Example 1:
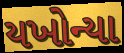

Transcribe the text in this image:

યખોન્યા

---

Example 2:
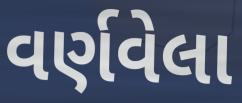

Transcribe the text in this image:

વર્ણવેલા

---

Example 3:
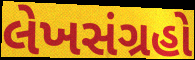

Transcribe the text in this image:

લેખસંગ્રહો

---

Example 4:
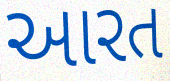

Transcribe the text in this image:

આરત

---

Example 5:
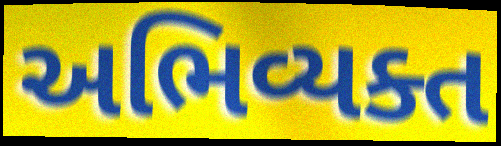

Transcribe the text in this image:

અભિવ્યક્ત